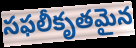
సఫలీకృతమైన